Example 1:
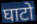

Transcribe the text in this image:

घाटो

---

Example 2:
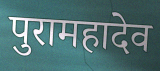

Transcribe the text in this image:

पुरामहादेव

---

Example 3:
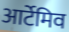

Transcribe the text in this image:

आर्टेमिव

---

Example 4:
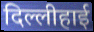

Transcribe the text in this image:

दिल्लीहाई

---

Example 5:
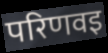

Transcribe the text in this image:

परिणवइ